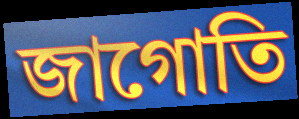
জাগোতি